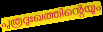
പുത്രദുഃഖത്തിന്റെയും